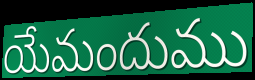
యేమందుము